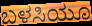
ಬಳಸಿಯೂ